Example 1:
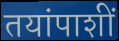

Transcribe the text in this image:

तयांपाशीं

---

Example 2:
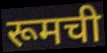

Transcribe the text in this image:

रूमची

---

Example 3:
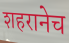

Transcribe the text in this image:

शहरानेच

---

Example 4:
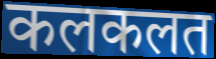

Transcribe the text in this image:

कलकलत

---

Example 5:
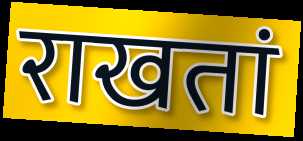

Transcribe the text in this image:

राखतां